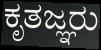
ಕೃತಜ್ಞರು